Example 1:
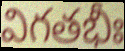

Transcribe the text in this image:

విగతభీః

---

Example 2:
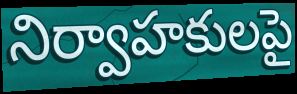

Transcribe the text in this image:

నిర్వాహకులపై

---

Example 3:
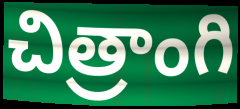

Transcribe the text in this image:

చిత్రాంగి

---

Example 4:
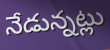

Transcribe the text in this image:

నేడున్నట్లు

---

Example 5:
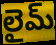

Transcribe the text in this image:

లైమ్